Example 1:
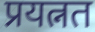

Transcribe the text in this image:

प्रयत्नत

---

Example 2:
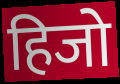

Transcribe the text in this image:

हिजो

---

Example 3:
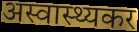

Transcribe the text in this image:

अस्वास्थ्यकर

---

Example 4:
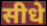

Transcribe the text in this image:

सीधे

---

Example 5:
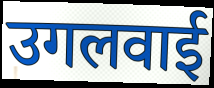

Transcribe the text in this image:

उगलवाई